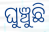
ଘୁଞ୍ଚୁଛି